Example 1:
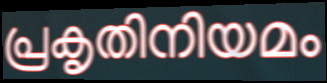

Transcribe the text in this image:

പ്രകൃതിനിയമം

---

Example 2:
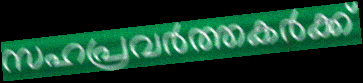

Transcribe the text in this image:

സഹപ്രവർത്തകർക്ക്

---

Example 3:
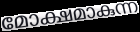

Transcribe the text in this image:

മോക്ഷമാകുന്ന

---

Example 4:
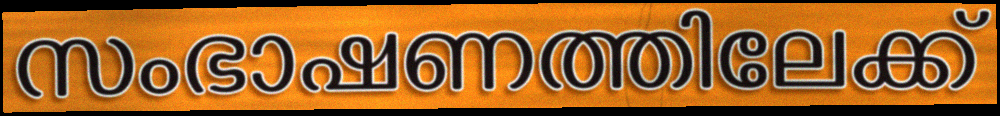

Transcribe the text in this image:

സംഭാഷണത്തിലേക്ക്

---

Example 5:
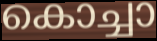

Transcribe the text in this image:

കൊച്ചാ